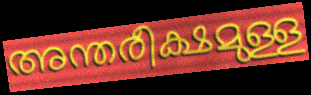
അന്തരീക്ഷമുള്ള